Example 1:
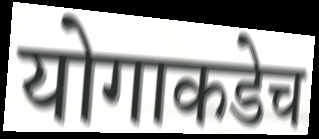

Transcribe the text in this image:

योगाकडेच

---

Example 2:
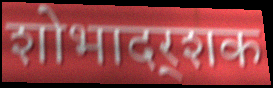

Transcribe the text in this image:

शोभादर्शक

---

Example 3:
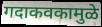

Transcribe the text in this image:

गदाकवकामुळे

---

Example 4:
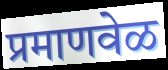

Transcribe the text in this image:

प्रमाणवेळ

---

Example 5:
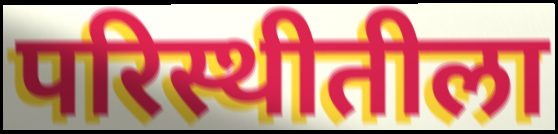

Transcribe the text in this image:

परिस्थीतीला